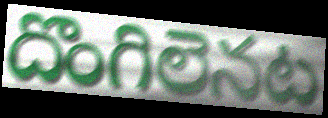
దొంగిలెనట